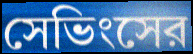
সেভিংসের